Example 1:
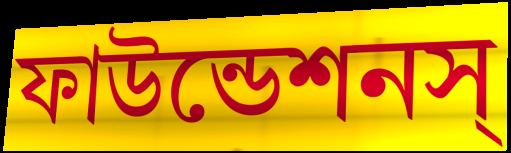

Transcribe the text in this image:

ফাউন্ডেশনস্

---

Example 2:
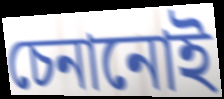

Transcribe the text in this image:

চেনানোই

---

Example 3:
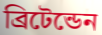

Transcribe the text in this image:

ব্রিটেন্ডেন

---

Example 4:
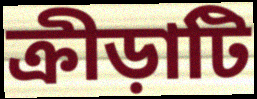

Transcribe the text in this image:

ক্রীড়াটি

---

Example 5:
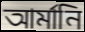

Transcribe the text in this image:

আর্মানি